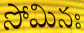
సోమినః